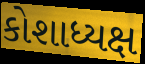
કોશાધ્યક્ષ